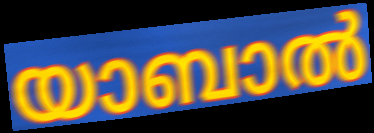
യാബാൽ